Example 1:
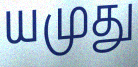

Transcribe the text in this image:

யமுது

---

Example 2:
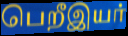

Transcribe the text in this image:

பெறீஇயர்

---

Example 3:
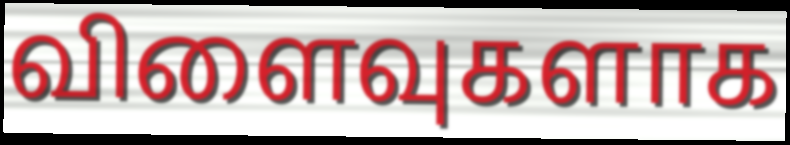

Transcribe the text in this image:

விளைவுகளாக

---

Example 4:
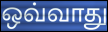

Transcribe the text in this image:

ஒவ்வாது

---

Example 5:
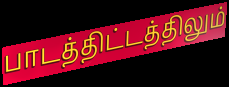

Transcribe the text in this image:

பாடத்திட்டத்திலும்